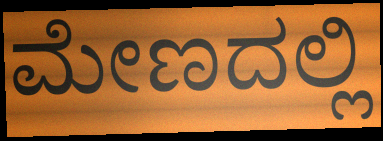
ಮೇಣದಲ್ಲಿ